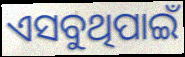
ଏସବୁଥିପାଇଁ